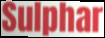
Sulphar